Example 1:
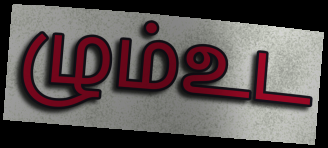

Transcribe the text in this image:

ழும்உட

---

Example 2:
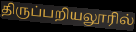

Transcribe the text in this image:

திருப்பறியலூரில்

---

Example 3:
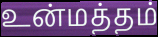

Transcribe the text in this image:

உன்மத்தம்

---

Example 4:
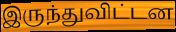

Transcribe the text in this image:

இருந்துவிட்டன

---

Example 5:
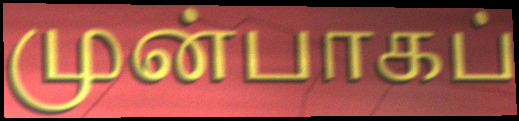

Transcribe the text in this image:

முன்பாகப்